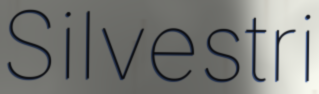
Silvestri